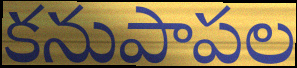
కనుపాపల